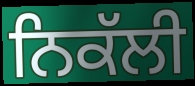
ਨਿਕੱਲੀ